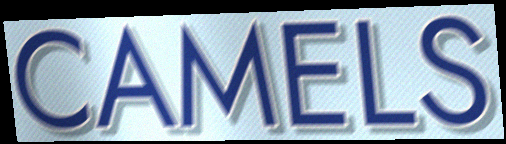
CAMELS